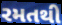
રમતથી